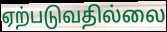
ஏற்படுவதில்லை